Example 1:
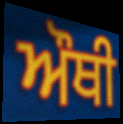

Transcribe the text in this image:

ਔਥੀ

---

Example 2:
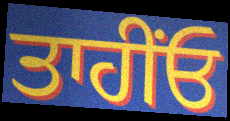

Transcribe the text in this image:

ਤਾਹੀਂਓ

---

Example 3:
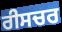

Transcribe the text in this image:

ਰੀਸਚਰ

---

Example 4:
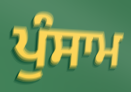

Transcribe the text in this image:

ਪੁੰਸਾਮ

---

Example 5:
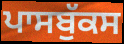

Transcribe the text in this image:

ਪਾਸਬੁੱਕਸ